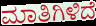
ಮಾತಿಗಿಳಿದೆ